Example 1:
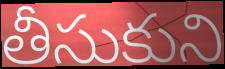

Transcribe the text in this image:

తీసుకుని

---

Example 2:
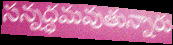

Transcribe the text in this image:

సన్నద్ధమవుతున్నారు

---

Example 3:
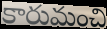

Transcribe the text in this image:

కారుమంచి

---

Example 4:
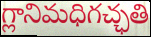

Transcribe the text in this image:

గ్లానిమధిగచ్ఛతి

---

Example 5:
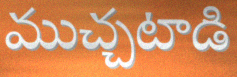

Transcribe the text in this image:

ముచ్చటాడి